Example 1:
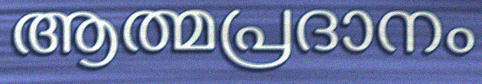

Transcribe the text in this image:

ആത്മപ്രദാനം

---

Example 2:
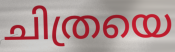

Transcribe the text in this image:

ചിത്രയെ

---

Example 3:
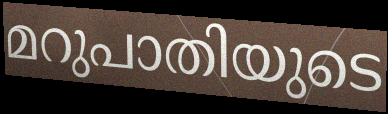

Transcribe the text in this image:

മറുപാതിയുടെ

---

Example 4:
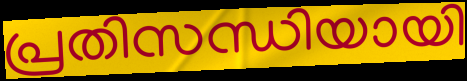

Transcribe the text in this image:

പ്രതിസന്ധിയായി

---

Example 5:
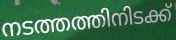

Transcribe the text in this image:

നടത്തത്തിനിടക്ക്